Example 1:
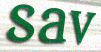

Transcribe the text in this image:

sav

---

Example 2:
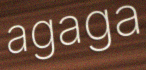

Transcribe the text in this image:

agaga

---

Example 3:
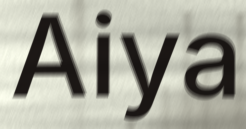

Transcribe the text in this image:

Aiya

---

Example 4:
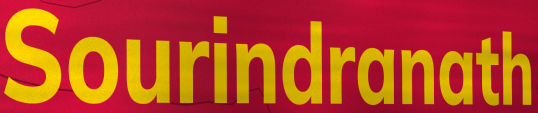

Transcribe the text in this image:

Sourindranath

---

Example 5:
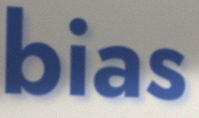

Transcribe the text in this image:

bias